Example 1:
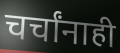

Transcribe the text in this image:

चर्चांनाही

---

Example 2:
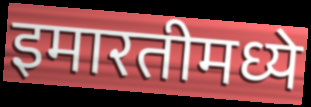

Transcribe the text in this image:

इमारतीमध्ये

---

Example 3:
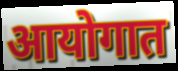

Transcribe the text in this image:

आयोगात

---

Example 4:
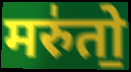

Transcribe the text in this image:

मरु॑तो॒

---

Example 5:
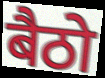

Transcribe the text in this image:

बैठो